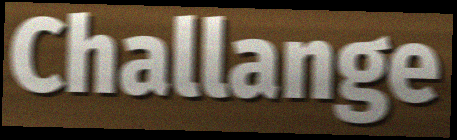
Challange